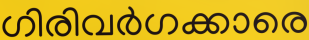
ഗിരിവർഗക്കാരെ